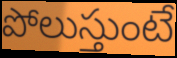
పోలుస్తుంటే